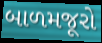
બાળમજૂરો